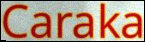
Caraka